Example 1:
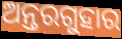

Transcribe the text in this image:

ଅନ୍ତରଗୁହାର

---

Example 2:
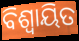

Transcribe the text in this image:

ବିଶ୍ବାୟିତ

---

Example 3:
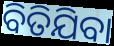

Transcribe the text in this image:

ବିତିଯିବା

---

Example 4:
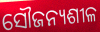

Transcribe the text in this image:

ସୌଜନ୍ୟଶୀଳ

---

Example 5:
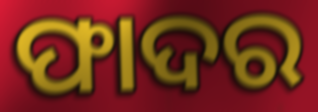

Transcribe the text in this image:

ଫାଦର